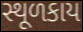
સ્થૂળકાય